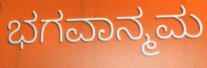
ಭಗವಾನ್ಮಮ